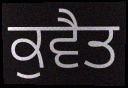
ਕੁਵੈਤ